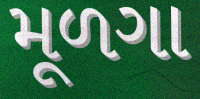
મૂળગા